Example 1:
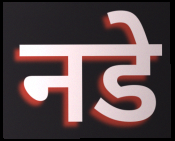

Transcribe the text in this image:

नडे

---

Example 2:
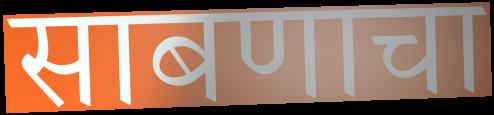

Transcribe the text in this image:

साबणाचा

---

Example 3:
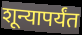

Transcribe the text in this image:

शून्यापर्यंत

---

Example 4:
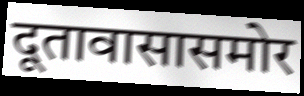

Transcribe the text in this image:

दूतावासासमोर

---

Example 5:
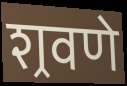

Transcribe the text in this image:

श्रवणे